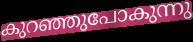
കുറഞ്ഞുപോകുന്നു